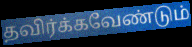
தவிர்க்கவேண்டும்